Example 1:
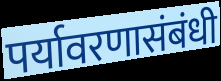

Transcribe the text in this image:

पर्यावरणासंबंधी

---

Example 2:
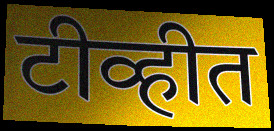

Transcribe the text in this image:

टीव्हीत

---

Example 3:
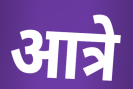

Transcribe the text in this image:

आत्रे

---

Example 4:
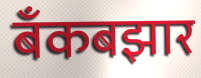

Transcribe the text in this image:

बँकबझार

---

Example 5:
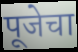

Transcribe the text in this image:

पूजेचा